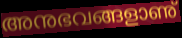
അനുഭവങ്ങളാണു്